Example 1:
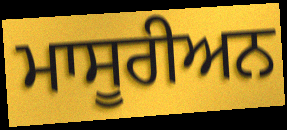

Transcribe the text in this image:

ਮਾਸੂਰੀਅਨ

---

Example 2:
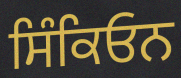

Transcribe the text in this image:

ਸਿੰਕਿਓਨ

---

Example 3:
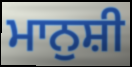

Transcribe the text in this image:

ਮਾਨੁਸ਼ੀ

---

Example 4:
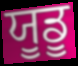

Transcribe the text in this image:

ਯੂਡੂ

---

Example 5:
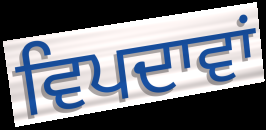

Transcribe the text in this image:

ਵਿਪਦਾਵਾਂ